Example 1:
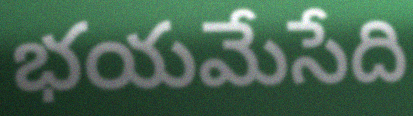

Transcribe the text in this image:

భయమేసేది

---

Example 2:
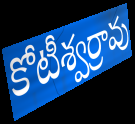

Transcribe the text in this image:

కోటీశ్వర్రావు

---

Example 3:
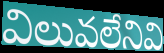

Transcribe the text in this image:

విలువలేనివి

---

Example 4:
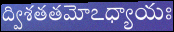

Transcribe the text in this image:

ద్విశతతమోఽధ్యాయః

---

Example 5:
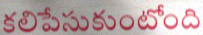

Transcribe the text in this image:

కలిపేసుకుంటోంది